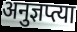
अनुज्ञप्त्या